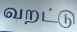
வறட்டு